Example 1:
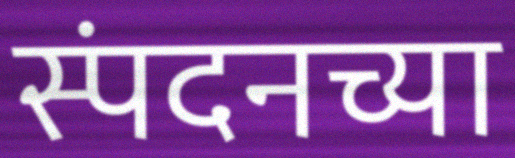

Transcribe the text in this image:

स्पंदनच्या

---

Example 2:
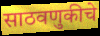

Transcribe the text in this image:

साठवणुकीचे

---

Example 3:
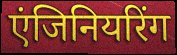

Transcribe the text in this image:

एंजिनियरिंग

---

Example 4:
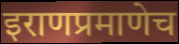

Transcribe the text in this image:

इराणप्रमाणेच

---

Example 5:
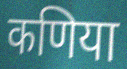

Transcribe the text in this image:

कणिया